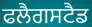
ਫਲੈਗਸਟੈਡ